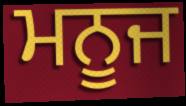
ਮਨੂਜ